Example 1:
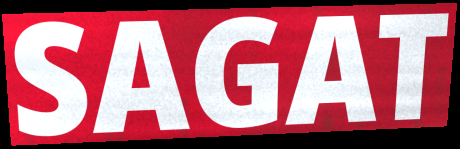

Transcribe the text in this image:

SAGAT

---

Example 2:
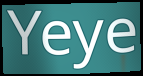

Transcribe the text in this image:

Yeye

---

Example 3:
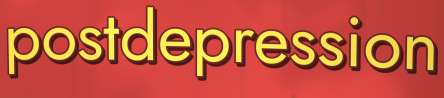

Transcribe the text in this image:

postdepression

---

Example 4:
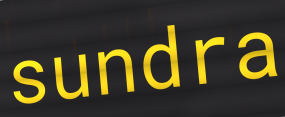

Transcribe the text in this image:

sundra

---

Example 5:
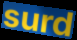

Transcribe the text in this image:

surd